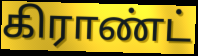
கிராண்ட்